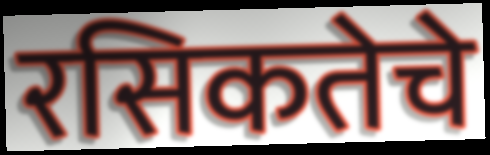
रसिकतेचे